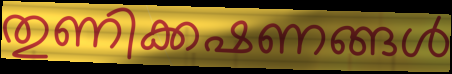
തുണിക്കഷണങ്ങൾ